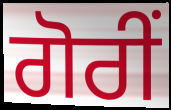
ਗੋਰੀਂ